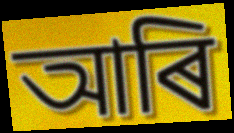
আৰি